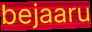
bejaaru